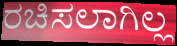
ರಚಿಸಲಾಗಿಲ್ಲ